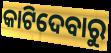
କାଟିଦେବାରୁ